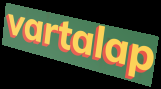
vartalap